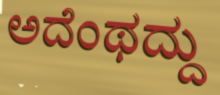
ಅದೆಂಥದ್ದು